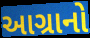
આગ્રાનો